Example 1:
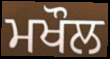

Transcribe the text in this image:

ਮਖੌਲ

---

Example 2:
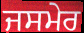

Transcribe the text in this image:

ਜਸਮੇਰ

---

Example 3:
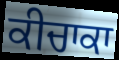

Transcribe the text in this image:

ਕੀਚਾਕਾ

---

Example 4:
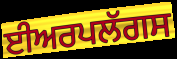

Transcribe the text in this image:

ਈਅਰਪਲੱਗਸ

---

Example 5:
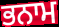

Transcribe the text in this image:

ਭਨਾਮ